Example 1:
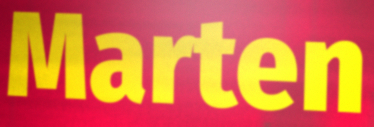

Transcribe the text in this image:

Marten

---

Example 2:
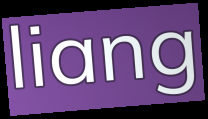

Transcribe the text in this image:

liang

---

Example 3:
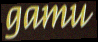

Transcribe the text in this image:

gamu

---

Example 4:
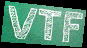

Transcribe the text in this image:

VTF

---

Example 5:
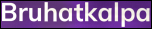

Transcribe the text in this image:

Bruhatkalpa